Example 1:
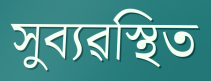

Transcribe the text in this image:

সুব্যৱস্থিত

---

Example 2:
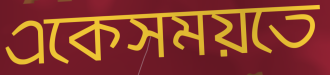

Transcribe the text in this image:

একেসময়তে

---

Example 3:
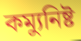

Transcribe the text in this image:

কম্যুনিষ্ট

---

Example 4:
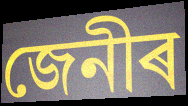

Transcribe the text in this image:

জেনীৰ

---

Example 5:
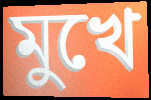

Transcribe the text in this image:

মুখে